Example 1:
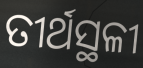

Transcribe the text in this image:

ତୀର୍ଥସ୍ଥଳୀ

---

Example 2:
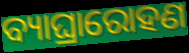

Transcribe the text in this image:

ବ୍ୟାଘ୍ରାରୋହଣ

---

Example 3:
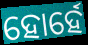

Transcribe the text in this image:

ହୋର୍ହେ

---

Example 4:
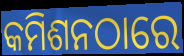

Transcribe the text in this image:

କମିଶନଠାରେ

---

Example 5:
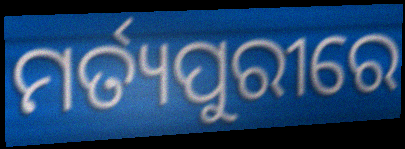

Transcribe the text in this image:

ମର୍ତ୍ୟପୁରୀରେ